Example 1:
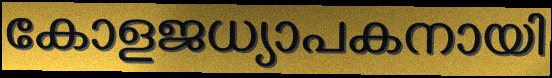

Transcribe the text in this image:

കോളജധ്യാപകനായി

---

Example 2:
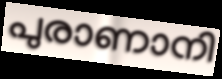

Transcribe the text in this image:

പുരാണാനി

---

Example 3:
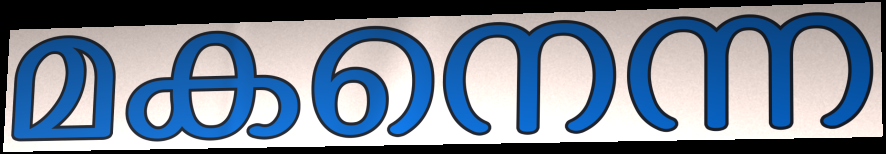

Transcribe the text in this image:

മകനെന്ന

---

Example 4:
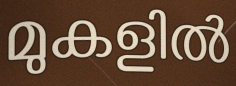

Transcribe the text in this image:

മുകളിൽ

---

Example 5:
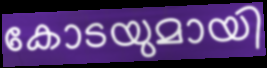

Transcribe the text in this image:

കോടയുമായി